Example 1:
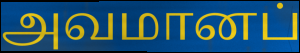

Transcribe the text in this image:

அவமானப்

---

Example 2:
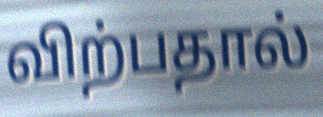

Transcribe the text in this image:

விற்பதால்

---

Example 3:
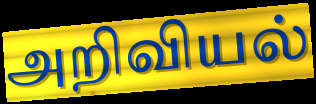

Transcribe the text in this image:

அறிவியல்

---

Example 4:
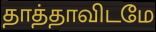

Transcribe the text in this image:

தாத்தாவிடமே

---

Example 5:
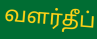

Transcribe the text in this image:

வளர்தீப்